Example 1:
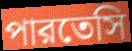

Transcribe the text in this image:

পারতেসি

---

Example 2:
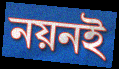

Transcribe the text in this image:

নয়নই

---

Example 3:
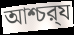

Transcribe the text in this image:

আশ্চর্‍য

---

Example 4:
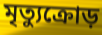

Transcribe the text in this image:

মৃত্যুক্রোড়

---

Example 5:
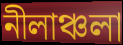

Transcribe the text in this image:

নীলাঞ্চলা